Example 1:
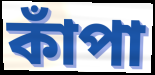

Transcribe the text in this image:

কাঁপা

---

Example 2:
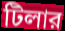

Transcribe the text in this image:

টিলার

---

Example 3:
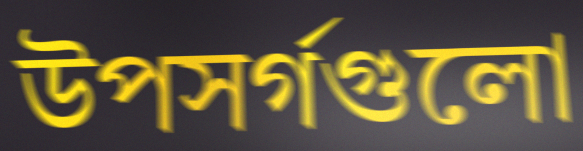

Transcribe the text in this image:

উপসর্গগুলো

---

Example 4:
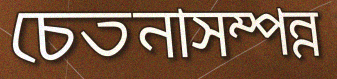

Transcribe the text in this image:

চেতনাসম্পন্ন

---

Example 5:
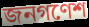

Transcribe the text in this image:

জনগণেশ